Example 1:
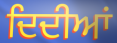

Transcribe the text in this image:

ਦਿਦੀਆਂ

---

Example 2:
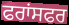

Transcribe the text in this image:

ਫਰਾਂਸਫਰ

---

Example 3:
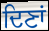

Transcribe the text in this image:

ਦਿਣਾਂ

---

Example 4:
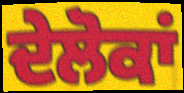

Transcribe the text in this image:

ਦੇਲੋਕਾਂ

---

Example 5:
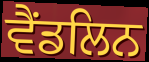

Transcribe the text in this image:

ਵੈਂਡਲਿਨ